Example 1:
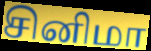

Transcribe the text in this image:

சினிமா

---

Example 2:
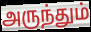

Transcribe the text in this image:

அருந்தும்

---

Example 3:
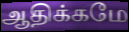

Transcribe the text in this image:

ஆதிக்கமே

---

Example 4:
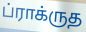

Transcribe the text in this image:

ப்ராக்ருத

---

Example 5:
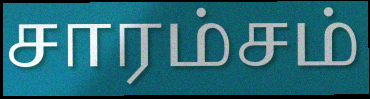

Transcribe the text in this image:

சாரம்சம்